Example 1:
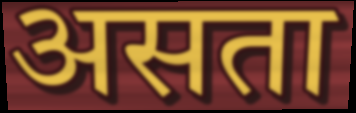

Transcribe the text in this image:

असता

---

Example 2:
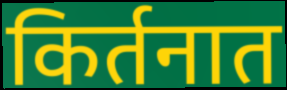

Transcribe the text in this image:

किर्तनात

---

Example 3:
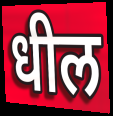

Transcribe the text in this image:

धील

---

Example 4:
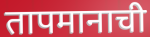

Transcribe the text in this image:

तापमानाची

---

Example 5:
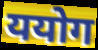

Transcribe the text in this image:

ययोग